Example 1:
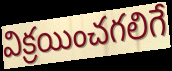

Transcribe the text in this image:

విక్రయించగలిగే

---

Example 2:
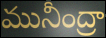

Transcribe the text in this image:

మునీంద్రా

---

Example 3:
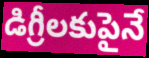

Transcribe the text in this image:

డిగ్రీలకుపైనే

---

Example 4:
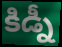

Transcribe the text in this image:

కిడ్నీ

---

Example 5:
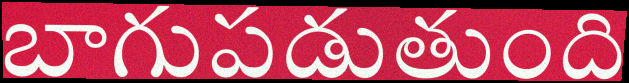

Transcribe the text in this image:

బాగుపడుతుంది